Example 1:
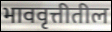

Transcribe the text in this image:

भाववृत्तीतील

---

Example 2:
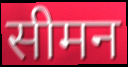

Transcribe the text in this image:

सीमन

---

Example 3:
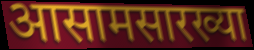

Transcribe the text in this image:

आसामसारख्या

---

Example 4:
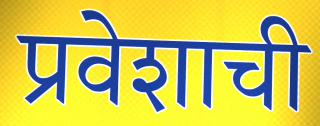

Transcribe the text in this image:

प्रवेशाची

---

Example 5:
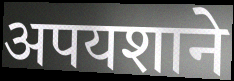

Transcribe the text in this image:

अपयशाने